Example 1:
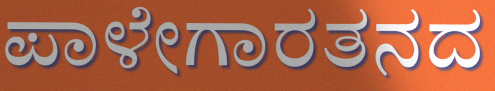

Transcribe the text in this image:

ಪಾಳೇಗಾರತನದ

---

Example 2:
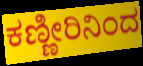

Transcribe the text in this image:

ಕಣ್ಣೀರಿನಿಂದ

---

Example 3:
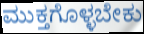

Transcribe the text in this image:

ಮುಕ್ತಗೊಳ್ಳಬೇಕು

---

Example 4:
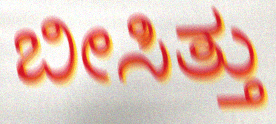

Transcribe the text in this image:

ಬೀಸಿತ್ತು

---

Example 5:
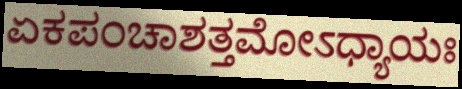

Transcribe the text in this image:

ಏಕಪಂಚಾಶತ್ತಮೋಽಧ್ಯಾಯಃ